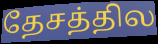
தேசத்தில